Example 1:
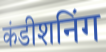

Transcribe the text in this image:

कंडीशनिंग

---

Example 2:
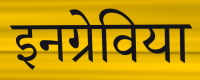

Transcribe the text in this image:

इनग्रेविया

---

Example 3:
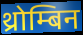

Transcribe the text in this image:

थ्रोम्बिन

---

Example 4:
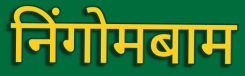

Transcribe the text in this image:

निंगोमबाम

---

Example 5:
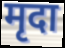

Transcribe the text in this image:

मृदा